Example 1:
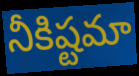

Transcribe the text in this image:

నీకిష్టమా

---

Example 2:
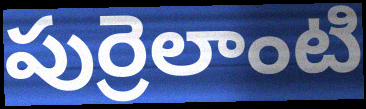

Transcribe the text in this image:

పుర్రెలాంటి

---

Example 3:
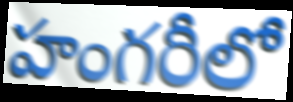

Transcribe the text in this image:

హంగరీలో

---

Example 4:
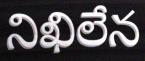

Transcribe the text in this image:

నిఖిలేన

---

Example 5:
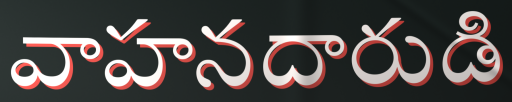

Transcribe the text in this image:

వాహనదారుడి